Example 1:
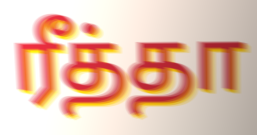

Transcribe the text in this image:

ரீத்தா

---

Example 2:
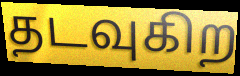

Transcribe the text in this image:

தடவுகிற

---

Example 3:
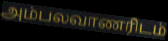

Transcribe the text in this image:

அம்பலவாணரிடம்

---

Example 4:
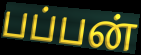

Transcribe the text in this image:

பப்பன்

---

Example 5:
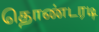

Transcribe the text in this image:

தொண்டரடி